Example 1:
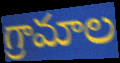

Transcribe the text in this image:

గ్రామాల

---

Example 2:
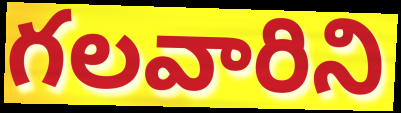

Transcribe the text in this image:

గలవారిని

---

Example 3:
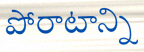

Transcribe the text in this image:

పోరాటాన్ని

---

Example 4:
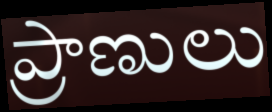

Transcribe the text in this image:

ప్రాణులు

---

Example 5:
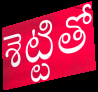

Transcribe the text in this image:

శెట్టితో